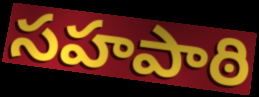
సహపాఠి